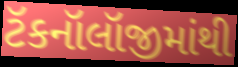
ટૅકનૉલૉજીમાંથી